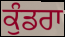
ਕੁੰਡਰਾ